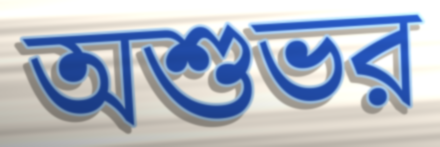
অশুভর